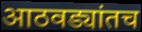
आठवड्यांतच